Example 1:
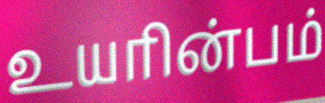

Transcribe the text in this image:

உயரின்பம்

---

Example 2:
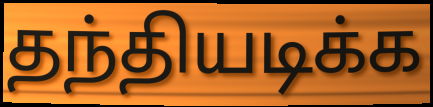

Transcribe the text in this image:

தந்தியடிக்க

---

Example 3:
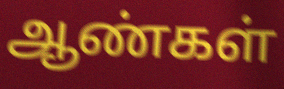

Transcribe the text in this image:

ஆண்கள்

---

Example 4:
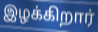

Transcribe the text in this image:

இழக்கிறார்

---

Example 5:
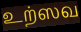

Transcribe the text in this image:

உற்ஸவ